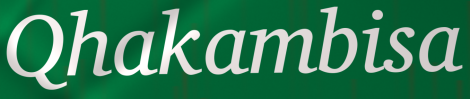
Qhakambisa